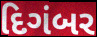
દિગંબર